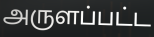
அருளப்பட்ட